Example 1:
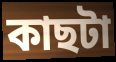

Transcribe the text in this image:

কাছটা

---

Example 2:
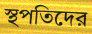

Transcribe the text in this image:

স্থপতিদের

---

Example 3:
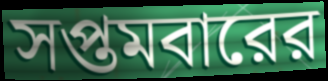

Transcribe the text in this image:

সপ্তমবারের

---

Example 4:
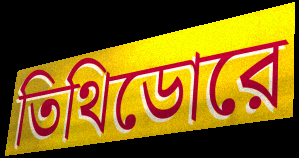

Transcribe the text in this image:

তিথিডোরে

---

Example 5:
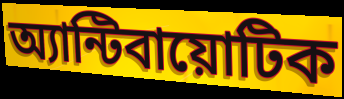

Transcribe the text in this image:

অ্যান্টিবায়োটিক